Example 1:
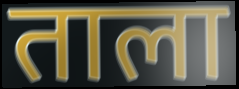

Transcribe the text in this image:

ताला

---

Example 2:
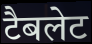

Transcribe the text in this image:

टैबलेट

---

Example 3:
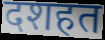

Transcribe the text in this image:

दशहत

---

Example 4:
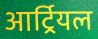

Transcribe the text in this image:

आर्ट्रियल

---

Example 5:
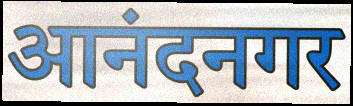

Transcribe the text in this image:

आनंदनगर